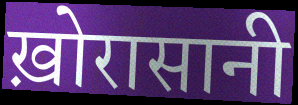
ख़ोरासानी